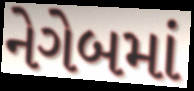
નેગેબમાં